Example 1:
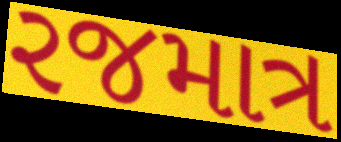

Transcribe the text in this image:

રજમાત્ર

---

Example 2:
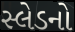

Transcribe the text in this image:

સ્લેડનો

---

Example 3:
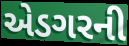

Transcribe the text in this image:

એડગરની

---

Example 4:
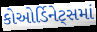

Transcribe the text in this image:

કોઓર્ડિનેટ્સમાં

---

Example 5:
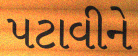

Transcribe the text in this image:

પટાવીને